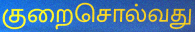
குறைசொல்வது